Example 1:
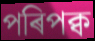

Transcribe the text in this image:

পৰিপক্ব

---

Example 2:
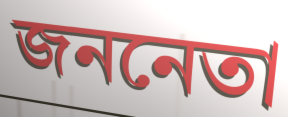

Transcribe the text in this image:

জননেতা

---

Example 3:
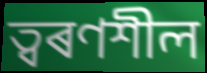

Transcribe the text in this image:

ত্বৰণশীল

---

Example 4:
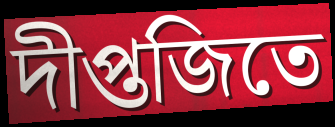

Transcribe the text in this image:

দীপ্তজিতে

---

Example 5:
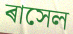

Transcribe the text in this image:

ৰাসেল